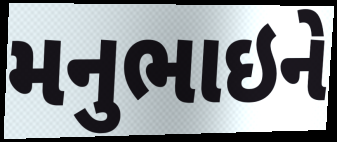
મનુભાઇને